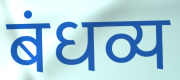
बंधव्य